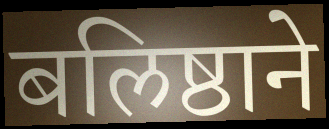
बलिष्ठाने